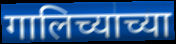
गालिच्याच्या